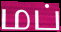
மப்